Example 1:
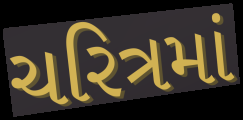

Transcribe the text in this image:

ચરિત્રમાં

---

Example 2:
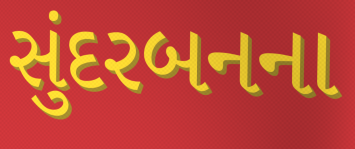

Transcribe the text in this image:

સુંદરબનના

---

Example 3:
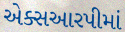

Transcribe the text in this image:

એક્સઆરપીમાં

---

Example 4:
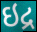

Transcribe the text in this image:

ઇદ્ર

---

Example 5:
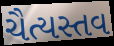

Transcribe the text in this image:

ચૈત્યસ્તવ